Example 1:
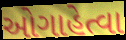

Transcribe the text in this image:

ઓગાહેત્વા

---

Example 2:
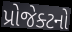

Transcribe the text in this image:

પ્રોજેક્ટનો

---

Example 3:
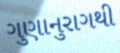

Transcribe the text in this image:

ગુણાનુરાગથી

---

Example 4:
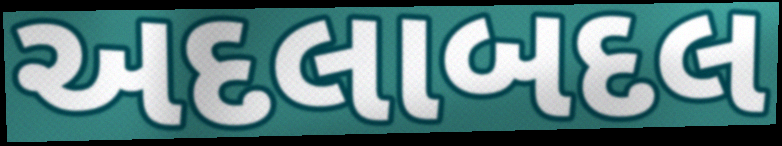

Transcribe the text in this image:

અદલાબદલ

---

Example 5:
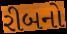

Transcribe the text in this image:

રીબનો